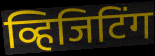
व्हिजिटिंग